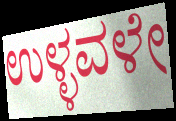
ಉಳ್ಳವಳೇ